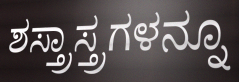
ಶಸ್ತ್ರಾಸ್ತ್ರಗಳನ್ನೂ